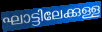
ഘാട്ടിലേക്കുള്ള